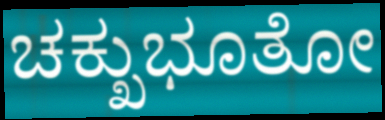
ಚಕ್ಖುಭೂತೋ